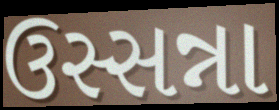
ઉસ્સન્ના